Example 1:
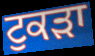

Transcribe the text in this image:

ਟੁਕੜਾ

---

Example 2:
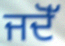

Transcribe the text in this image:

ਜਦੋੱ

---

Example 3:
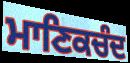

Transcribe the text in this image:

ਮਾਣਿਕਚੰਦ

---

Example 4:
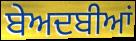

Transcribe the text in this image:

ਬੇਅਦਬੀਆਂ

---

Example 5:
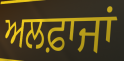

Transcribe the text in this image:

ਅਲਫ਼ਾਜਾਂ